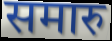
समारु